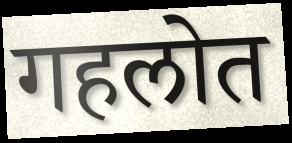
गहलोत